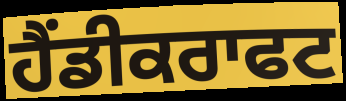
ਹੈਂਡੀਕਰਾਫਟ